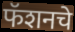
फॅशनचे